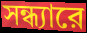
সন্ধ্যারে